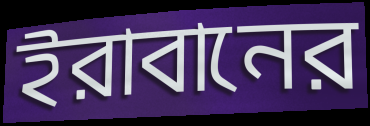
ইরাবানের